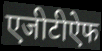
एजीटीऐफ